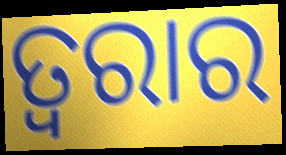
ତ୍ୱରାର